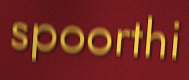
spoorthi